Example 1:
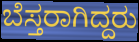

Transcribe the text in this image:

ಬೆಸ್ತರಾಗಿದ್ದರು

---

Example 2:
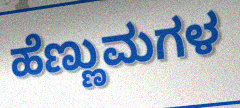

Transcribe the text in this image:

ಹೆಣ್ಣುಮಗಳ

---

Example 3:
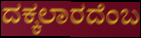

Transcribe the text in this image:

ದಕ್ಕಲಾರದೆಂಬ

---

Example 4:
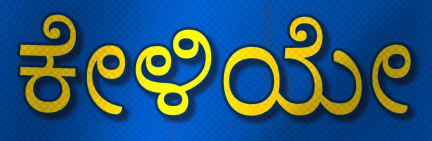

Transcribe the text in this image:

ಕೇಳಿಯೇ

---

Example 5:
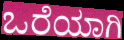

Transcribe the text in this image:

ಒರೆಯಾಗಿ